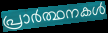
പ്രാർത്ഥനകൾ